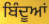
ਬਿੰਦੂਆਂ